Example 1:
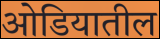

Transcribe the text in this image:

ओडियातील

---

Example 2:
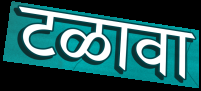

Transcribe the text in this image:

टळावा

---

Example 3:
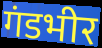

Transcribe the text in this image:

गंडभीर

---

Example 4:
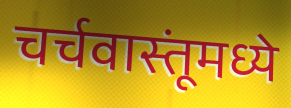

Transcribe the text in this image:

चर्चवास्तूंमध्ये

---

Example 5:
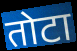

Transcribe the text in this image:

तोटा